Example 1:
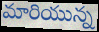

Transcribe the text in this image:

మారియున్న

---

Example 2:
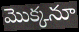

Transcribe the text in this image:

మొక్కనూ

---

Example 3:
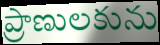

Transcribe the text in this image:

ప్రాణులకును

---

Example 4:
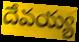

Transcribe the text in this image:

దేవయ్య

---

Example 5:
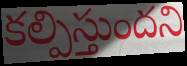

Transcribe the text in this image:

కల్పిస్తుందని